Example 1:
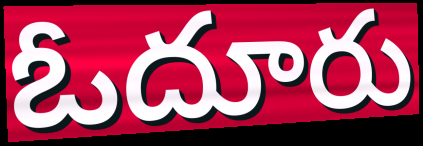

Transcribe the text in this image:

ఓదూరు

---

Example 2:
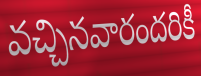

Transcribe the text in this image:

వచ్చినవారందరికీ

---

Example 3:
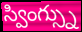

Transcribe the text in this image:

స్వింగ్స్ను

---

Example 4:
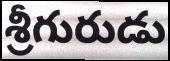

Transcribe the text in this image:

శ్రీగురుడు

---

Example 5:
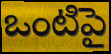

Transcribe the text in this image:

ఒంటిపై